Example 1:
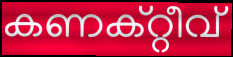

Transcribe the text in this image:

കണക്റ്റീവ്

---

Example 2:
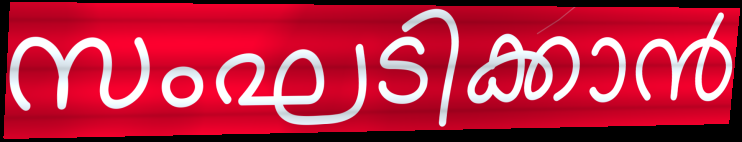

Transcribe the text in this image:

സംഘടിക്കാൻ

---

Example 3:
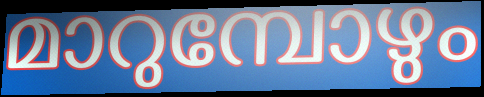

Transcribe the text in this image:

മാറുമ്പോഴും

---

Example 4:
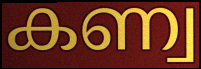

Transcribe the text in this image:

കണ്വ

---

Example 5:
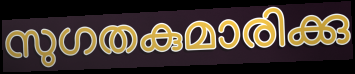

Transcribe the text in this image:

സുഗതകുമാരിക്കു